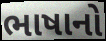
ભાષાનો